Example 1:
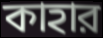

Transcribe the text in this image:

কাহার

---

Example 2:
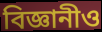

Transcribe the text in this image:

বিজ্ঞানীও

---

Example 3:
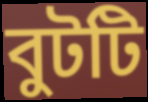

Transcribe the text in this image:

বুটটি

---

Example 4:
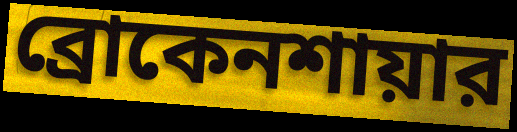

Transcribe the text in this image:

ব্রোকেনশায়ার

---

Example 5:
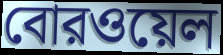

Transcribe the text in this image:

বোরওয়েল